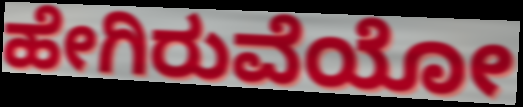
ಹೇಗಿರುವೆಯೋ